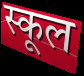
स्‍कूल